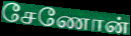
சேணோன்